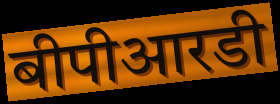
बीपीआरडी